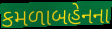
કમળાબહેનના